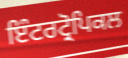
ਇੰਟਰਟ੍ਰੋਪਿਕਲ